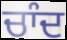
ਚਾੰਦ